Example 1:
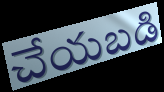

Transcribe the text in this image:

చేయబడి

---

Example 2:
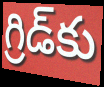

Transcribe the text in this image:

గ్రిడ్‌కు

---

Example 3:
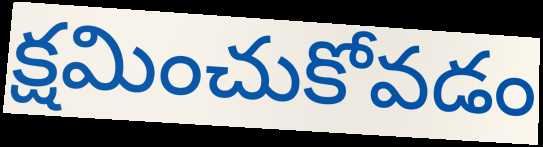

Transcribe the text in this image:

క్షమించుకోవడం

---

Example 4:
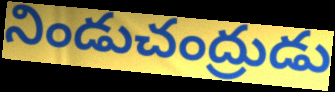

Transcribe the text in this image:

నిండుచంద్రుడు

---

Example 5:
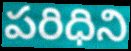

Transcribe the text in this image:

పరిధిని